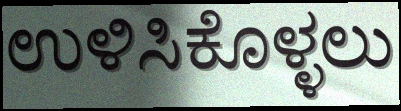
ಉಳಿಸಿಕೊಳ್ಳಲು